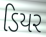
ડિયર